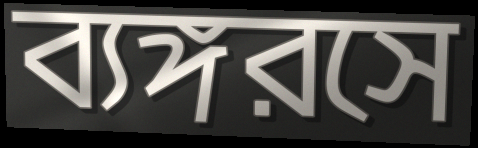
ব্যঙ্গরসে